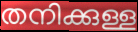
തനിക്കുള്ള